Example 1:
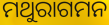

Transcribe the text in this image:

ମଥୁରାଗମନ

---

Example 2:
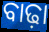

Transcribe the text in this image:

ବାଢ଼ା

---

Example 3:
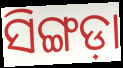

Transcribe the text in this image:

ସିଙ୍ଗଡ଼ା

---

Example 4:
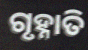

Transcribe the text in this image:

ଗୃହ୍ନାତି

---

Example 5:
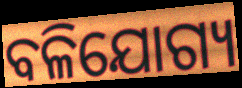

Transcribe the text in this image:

ବଳିଯୋଗ୍ୟ